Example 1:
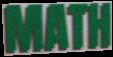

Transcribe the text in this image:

MATH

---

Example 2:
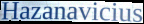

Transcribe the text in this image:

Hazanavicius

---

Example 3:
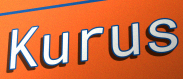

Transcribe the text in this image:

Kurus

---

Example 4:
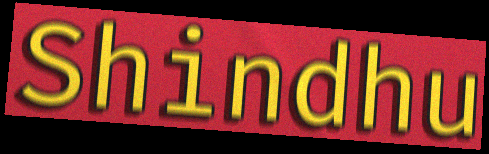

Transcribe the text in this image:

Shindhu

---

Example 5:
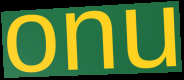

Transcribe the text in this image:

onu